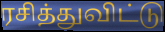
ரசித்துவிட்டு